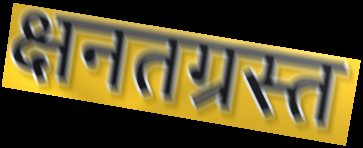
क्षनतग्रस्त